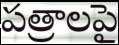
పత్రాలపై